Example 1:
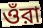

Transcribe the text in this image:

ওঁরা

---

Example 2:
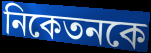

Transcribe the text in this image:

নিকেতনকে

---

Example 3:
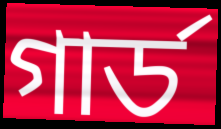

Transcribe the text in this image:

গার্ড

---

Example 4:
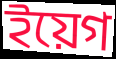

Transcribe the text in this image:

ইয়েগ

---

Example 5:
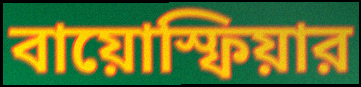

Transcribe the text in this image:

বায়োস্ফিয়ার